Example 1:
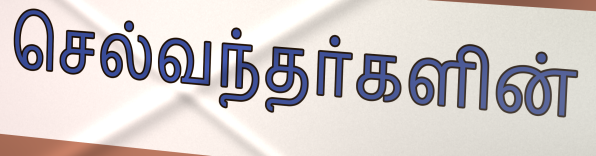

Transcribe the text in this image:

செல்வந்தர்களின்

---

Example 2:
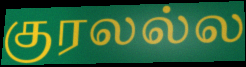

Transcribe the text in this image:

குரலல்ல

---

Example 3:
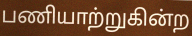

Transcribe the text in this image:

பணியாற்றுகின்ற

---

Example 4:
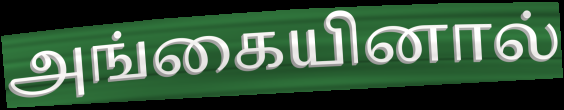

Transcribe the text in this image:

அங்கையினால்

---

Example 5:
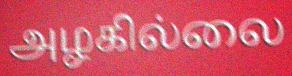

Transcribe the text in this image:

அழகில்லை